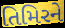
તિમિરને